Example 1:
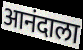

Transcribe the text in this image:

आनंदाला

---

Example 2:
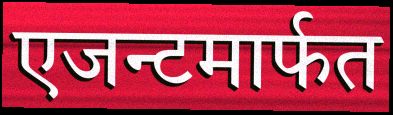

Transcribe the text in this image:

एजन्टमार्फत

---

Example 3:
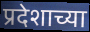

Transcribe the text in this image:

प्रदेशाच्या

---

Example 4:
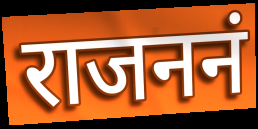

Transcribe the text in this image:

राजननं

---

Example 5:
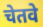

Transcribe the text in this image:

चेतवे